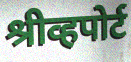
श्रीव्हपोर्ट